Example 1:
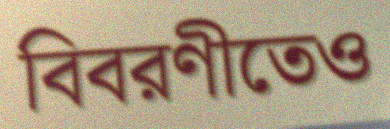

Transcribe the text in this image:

বিবরণীতেও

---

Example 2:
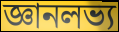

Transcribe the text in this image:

জ্ঞানলভ্য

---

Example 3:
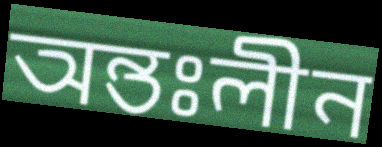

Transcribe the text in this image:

অন্তঃলীন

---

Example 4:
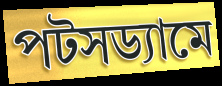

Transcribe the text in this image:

পটসড্যামে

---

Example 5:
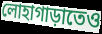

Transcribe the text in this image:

লোহাগাড়াতেও